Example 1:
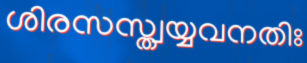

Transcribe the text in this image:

ശിരസസ്ത്വയ്യവനതിഃ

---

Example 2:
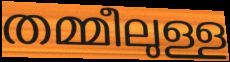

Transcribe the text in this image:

തമ്മീലുള്ള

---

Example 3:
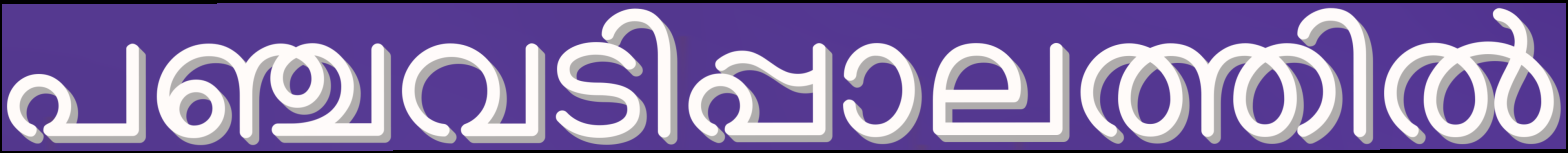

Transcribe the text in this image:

പഞ്ചവടിപ്പാലത്തിൽ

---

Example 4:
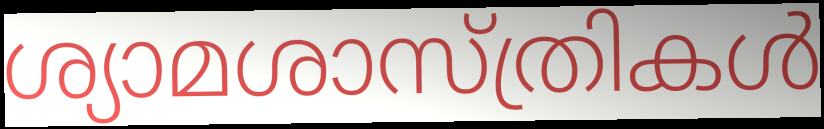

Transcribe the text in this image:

ശ്യാമശാസ്ത്രികൾ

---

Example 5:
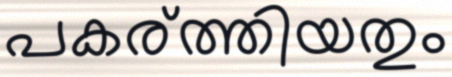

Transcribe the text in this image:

പകര്ത്തിയതും